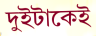
দুইটাকেই